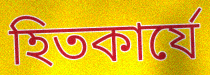
হিতকার্যে